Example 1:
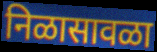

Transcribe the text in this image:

निळासावळा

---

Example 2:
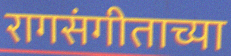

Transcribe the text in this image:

रागसंगीताच्या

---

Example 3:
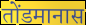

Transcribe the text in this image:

तोंडमानास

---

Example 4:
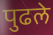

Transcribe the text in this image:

पुढले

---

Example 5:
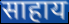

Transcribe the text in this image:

साहाय